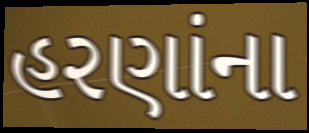
હરણાંના